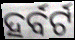
ହର୍ବର୍ଟ